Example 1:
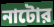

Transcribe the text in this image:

নাটোর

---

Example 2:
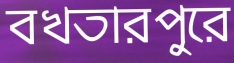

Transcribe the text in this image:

বখতারপুরে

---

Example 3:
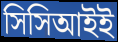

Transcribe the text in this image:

সিসিআইই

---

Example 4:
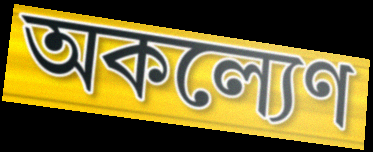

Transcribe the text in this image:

অকল্যেণ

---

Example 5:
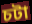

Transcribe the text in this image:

চটা